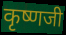
कृष्णजी